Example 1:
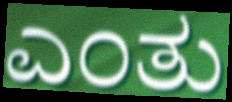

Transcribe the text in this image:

ಎಂತು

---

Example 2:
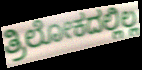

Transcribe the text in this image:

ತ್ರಿಲೋಕದಲ್ಲಿಲ್ಲ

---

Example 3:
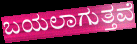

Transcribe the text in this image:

ಬಯಲಾಗುತ್ತವೆ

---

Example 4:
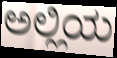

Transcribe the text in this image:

ಅಲ್ಲಿಯ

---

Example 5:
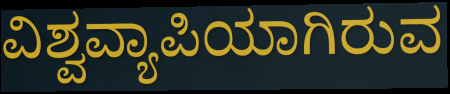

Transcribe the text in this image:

ವಿಶ್ವವ್ಯಾಪಿಯಾಗಿರುವ